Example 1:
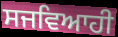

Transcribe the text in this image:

ਸਜਵਿਆਹੀ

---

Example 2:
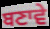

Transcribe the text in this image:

ਬਣਾਵੇ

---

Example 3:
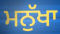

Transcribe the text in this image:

ਮਨੁੱਖਾ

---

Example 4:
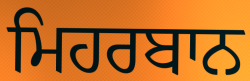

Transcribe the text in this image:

ਮਿਹਰਬਾਨ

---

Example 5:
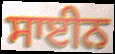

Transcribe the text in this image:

ਸਾਈਨ